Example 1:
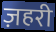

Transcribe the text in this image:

ज़हरी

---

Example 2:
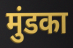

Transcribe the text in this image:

मुंडका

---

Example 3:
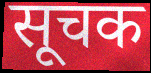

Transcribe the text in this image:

सूचक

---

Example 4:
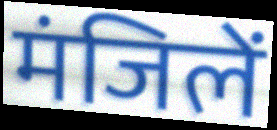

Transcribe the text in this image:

मंजिलें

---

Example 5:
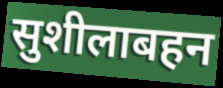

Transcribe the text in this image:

सुशीलाबहन